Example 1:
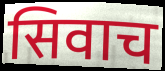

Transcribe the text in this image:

सिवाच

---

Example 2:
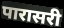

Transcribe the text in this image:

पारासरी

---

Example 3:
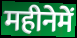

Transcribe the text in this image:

महीनेमें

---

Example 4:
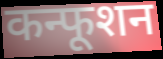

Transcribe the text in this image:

कन्फूशन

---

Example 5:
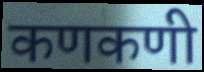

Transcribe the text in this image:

कणकणी